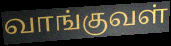
வாங்குவள்